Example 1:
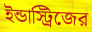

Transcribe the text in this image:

ইন্ডাস্ট্রিজের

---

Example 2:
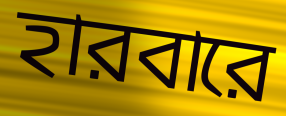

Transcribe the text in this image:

হারবারে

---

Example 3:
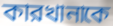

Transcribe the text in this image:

কারখানাকে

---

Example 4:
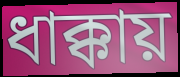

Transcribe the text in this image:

ধাক্কায়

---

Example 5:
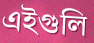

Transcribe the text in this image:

এইগুলি